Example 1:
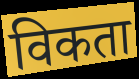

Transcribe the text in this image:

विकता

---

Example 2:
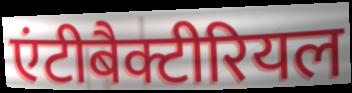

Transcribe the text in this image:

एंटीबैक्टीरियल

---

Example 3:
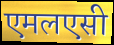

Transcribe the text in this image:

एमलएसी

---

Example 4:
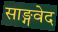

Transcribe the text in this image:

साङ्गवेद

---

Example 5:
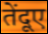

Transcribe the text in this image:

तेंदूए